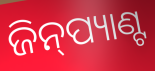
ଜିନ୍‍ପ୍ୟାଣ୍ଟ